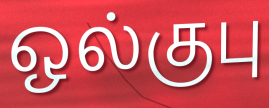
ஒல்குபு